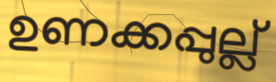
ഉണക്കപ്പുല്ല്